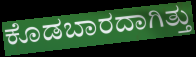
ಕೊಡಬಾರದಾಗಿತ್ತು